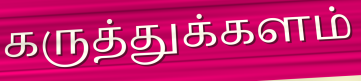
கருத்துக்களம்